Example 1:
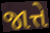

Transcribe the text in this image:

જાત્તે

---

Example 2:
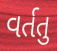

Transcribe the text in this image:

વર્તતુ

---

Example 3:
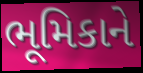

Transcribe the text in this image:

ભૂમિકાને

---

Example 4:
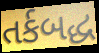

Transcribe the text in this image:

તર્કબદ્ધ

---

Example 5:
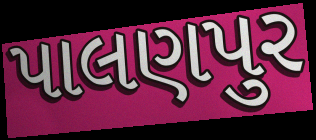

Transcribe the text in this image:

પાલણપુર